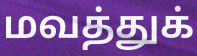
மவத்துக்